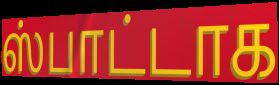
ஸ்பாட்டாக